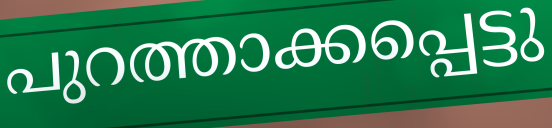
പുറത്താക്കപ്പെട്ടു